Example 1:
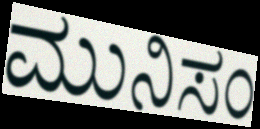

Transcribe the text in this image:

ಮುನಿಸಂ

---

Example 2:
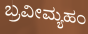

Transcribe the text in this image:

ಬ್ರವೀಮ್ಯಹಂ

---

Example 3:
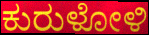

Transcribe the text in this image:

ಕುರುಳೋಳಿ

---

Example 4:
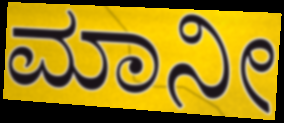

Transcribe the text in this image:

ಮಾನೀ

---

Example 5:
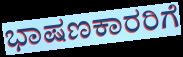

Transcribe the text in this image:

ಭಾಷಣಕಾರರಿಗೆ